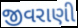
જીવરાણી